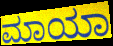
ಮಾಯಾ